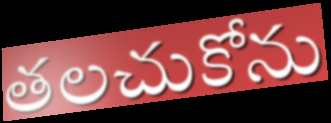
తలచుకోను